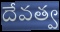
దేవత్వ